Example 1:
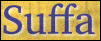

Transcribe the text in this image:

Suffa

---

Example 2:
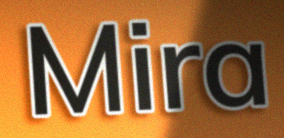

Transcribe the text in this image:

Mira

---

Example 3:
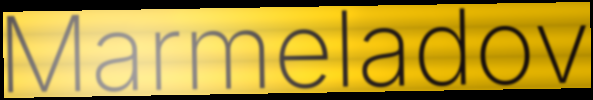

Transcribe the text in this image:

Marmeladov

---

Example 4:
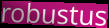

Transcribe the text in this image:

robustus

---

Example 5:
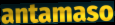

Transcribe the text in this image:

antamaso